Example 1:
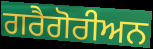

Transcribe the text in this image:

ਗਰੈਗੋਰੀਅਨ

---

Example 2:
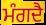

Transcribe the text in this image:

ਮੰਗਦੈ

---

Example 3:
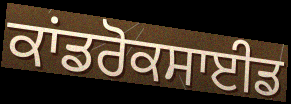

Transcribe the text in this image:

ਕਾਂਡਰੋਕਸਾਈਡ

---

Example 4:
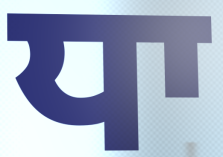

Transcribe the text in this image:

ਧਾ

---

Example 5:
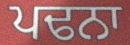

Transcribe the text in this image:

ਪਢਨਾ